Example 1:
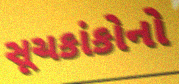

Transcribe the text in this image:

સૂચકાંકોનો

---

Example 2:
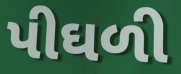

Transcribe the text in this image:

પીઘળી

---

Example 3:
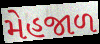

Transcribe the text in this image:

મેહજાળ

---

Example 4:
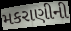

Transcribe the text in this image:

મકરાણીની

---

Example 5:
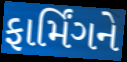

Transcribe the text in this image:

ફાર્મિંગને